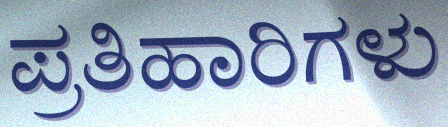
ಪ್ರತಿಹಾರಿಗಳು